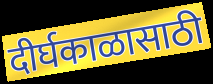
दीर्घकाळासाठी